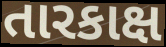
તારકાક્ષ